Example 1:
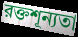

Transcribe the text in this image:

রক্তশূন্যতা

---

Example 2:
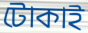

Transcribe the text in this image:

টোকাই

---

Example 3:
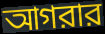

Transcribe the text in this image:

আগরার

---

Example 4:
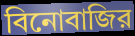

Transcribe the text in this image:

বিনোবাজির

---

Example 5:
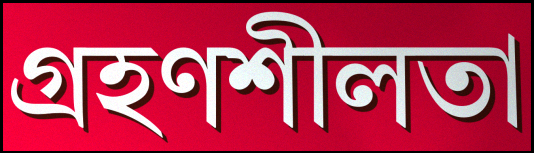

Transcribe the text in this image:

গ্রহণশীলতা